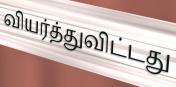
வியர்த்துவிட்டது